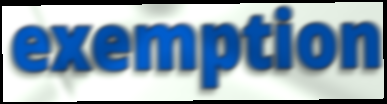
exemption